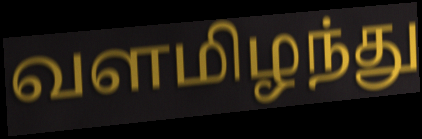
வளமிழந்து